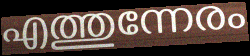
എത്തുന്നേരം